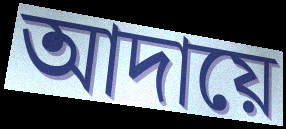
আদায়ে